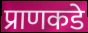
प्राणकडे